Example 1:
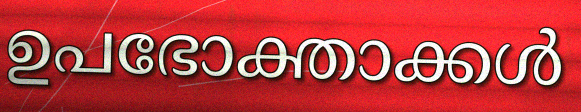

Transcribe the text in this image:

ഉപഭോക്താക്കൾ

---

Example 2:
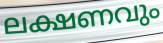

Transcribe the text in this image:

ലക്ഷണവും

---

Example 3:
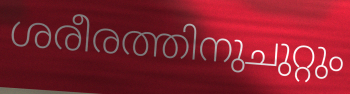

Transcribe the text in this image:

ശരീരത്തിനുചുറ്റും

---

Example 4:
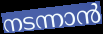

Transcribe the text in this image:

നടന്നാൻ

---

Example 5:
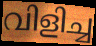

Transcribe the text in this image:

വിളിച്ച